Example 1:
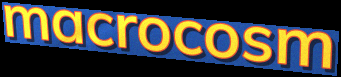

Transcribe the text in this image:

macrocosm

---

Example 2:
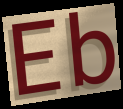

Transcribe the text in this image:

Eb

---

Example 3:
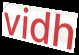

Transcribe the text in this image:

vidh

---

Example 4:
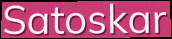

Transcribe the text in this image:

Satoskar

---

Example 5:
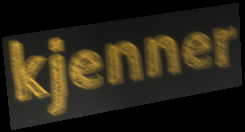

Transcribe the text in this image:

kjenner